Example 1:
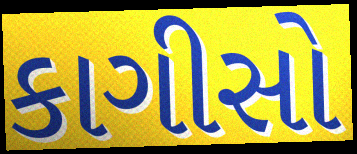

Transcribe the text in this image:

કાગીસો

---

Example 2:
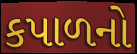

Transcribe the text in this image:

કપાળનો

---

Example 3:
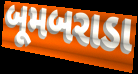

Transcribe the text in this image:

બૂમબરાડા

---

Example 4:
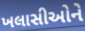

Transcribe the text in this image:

ખલાસીઓને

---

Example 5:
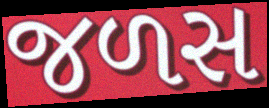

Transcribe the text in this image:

જળસ